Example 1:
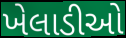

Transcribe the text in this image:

ખેલાડીઓ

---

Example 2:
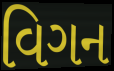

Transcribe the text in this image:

વિગન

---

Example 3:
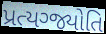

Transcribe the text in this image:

પ્રત્યગ્જ્યોતિ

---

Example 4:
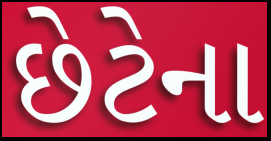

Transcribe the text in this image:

છેટેના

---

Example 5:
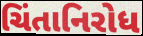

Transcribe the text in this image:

ચિંતાનિરોધ